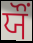
ਯੌਂ